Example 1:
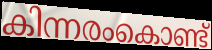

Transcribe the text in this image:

കിന്നരംകൊണ്ട്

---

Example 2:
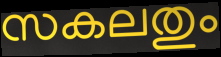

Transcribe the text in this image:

സകലതും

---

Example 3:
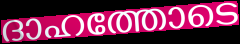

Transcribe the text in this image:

ദാഹത്തോടെ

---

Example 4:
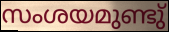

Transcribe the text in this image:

സംശയമുണ്ടു്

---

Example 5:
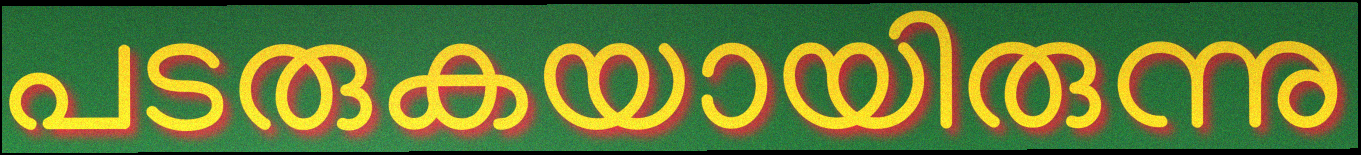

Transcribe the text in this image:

പടരുകയായിരുന്നു